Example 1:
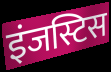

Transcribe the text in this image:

इंजस्टिस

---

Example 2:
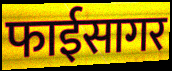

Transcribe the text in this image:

फाईसागर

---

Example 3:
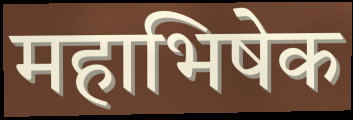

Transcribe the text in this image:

महाभिषेक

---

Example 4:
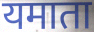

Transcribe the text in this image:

यमाता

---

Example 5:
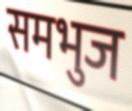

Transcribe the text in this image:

समभुज